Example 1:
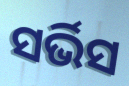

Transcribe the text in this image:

ସର୍ଭିସ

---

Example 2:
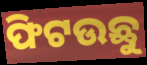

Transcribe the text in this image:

ଫିଟଉଛୁ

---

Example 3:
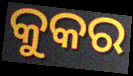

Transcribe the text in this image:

କୁକର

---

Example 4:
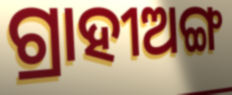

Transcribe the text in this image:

ଗ୍ରାହୀଅଙ୍ଗ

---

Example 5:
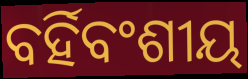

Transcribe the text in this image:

ବର୍ହିବଂଶୀୟ